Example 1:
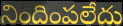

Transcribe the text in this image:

నిందింపలేదు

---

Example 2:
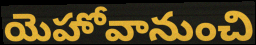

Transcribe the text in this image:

యెహోవానుంచి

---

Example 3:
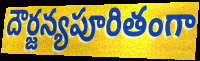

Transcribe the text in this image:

దౌర్జన్యపూరితంగా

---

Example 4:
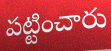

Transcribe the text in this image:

పట్టించారు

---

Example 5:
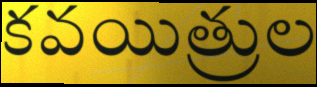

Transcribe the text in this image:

కవయిత్రుల